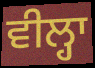
ਵੀਲ੍ਹਾ